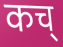
कच्